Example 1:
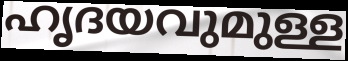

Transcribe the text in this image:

ഹൃദയവുമുള്ള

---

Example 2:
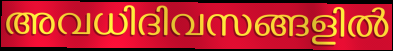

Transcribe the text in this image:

അവധിദിവസങ്ങളിൽ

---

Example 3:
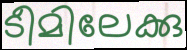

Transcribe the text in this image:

ടീമിലേക്കു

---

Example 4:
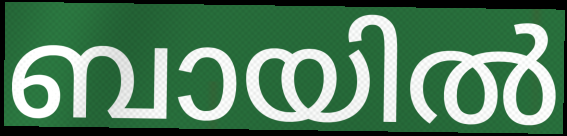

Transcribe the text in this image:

ബായിൽ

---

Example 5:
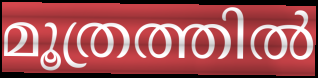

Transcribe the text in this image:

മൂത്രത്തിൽ